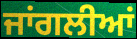
ਜਾਂਗਲੀਆਂ